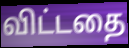
விட்டதை